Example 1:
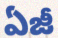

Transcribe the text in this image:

ఏజీ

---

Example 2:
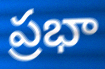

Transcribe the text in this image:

ప్రభా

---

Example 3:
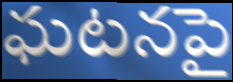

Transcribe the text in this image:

ఘటనపై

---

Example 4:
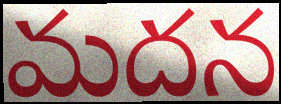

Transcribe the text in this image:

మదన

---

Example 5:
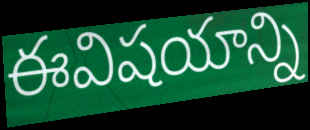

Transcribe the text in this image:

ఈవిషయాన్ని